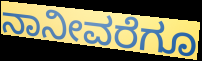
ನಾನೀವರೆಗೂ